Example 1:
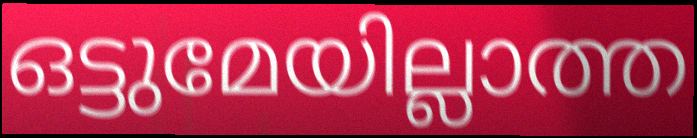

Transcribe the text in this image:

ഒട്ടുമേയില്ലാത്ത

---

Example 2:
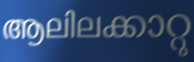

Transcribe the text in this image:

ആലിലക്കാറ്റു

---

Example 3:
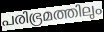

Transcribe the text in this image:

പരിഭ്രമത്തിലും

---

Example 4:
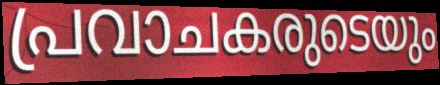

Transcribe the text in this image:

പ്രവാചകരുടെയും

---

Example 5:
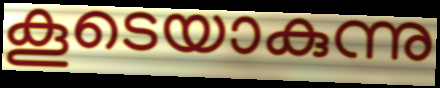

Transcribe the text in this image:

കൂടെയാകുന്നു